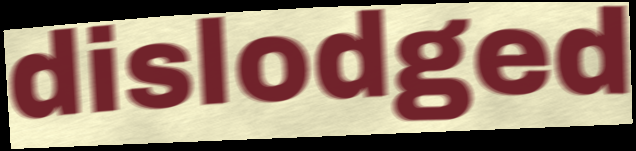
dislodged